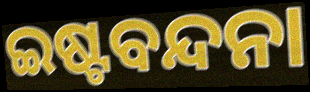
ଇଷ୍ଟବନ୍ଦନା